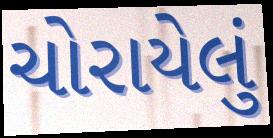
ચોરાયેલું